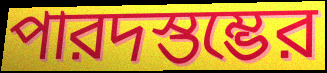
পারদস্তম্ভের